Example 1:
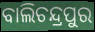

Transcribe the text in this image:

ବାଲିଚନ୍ଦ୍ରପୁର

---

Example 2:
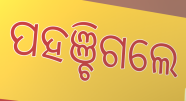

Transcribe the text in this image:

ପହଞ୍ଚିଗଲେ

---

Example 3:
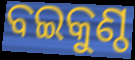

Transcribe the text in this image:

ବଇକୁଣ୍ଠ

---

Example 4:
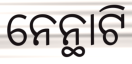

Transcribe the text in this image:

ନେନ୍ଥାଟି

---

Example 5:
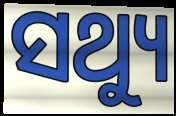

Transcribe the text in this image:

ସଥ୍ୟୁ